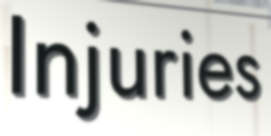
Injuries